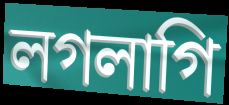
লগলাগি